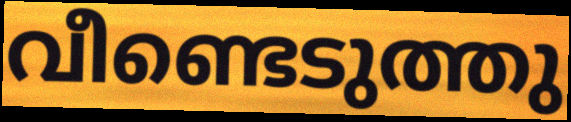
വീണ്ടെടുത്തു